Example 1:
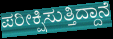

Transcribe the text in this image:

ಪರೀಕ್ಷಿಸುತ್ತಿದ್ದಾನೆ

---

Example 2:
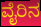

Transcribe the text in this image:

ವೈರಿನ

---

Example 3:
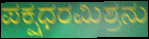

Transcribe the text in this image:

ಪಕ್ಷಧರಮಿಶ್ರನು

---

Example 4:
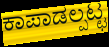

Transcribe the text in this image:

ಕಾಪಾಡಲ್ಪಟ್ಟ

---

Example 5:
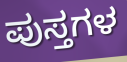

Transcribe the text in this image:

ಪುಸ್ತಗಳ